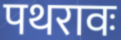
पथरावः